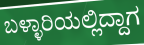
ಬಳ್ಳಾರಿಯಲ್ಲಿದ್ದಾಗ